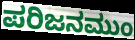
ಪರಿಜನಮುಂ